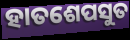
ହାତଶେପସୁତ